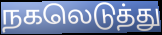
நகலெடுத்து